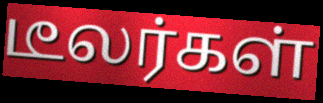
டீலர்கள்